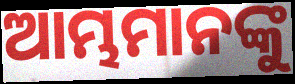
ଆମ୍ଭମାନଙ୍କୁ